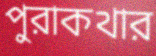
পুরাকথার